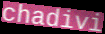
chadivi